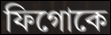
ফিগোকে